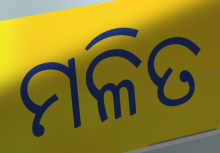
ମଳିତ